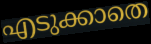
എടുക്കാതെ